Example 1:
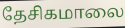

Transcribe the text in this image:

தேசிகமாலை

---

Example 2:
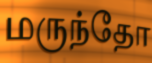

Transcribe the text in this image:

மருந்தோ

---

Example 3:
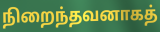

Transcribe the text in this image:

நிறைந்தவனாகத்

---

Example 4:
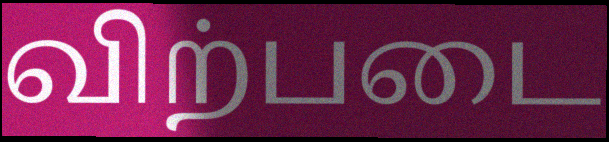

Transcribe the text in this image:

விற்படை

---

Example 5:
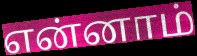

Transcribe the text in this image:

என்னாம்